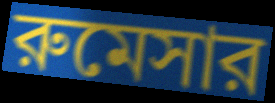
রুমেসার